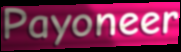
Payoneer